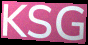
KSG